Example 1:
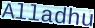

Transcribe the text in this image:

Alladhu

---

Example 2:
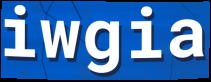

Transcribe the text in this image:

iwgia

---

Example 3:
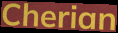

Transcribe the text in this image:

Cherian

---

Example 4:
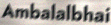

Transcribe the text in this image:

Ambalalbhai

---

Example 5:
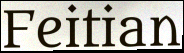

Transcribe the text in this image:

Feitian